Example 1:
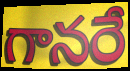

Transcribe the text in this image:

గానరే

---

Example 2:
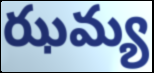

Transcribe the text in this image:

ఝమ్య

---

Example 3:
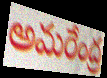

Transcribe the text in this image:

అమరేంద్ర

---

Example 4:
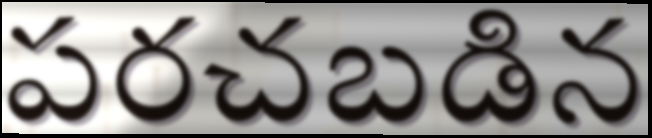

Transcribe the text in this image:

పరచబడిన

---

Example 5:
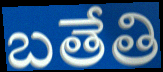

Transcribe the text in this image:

బతేతి